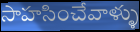
సాహసించేవాళ్ళు